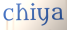
chiya